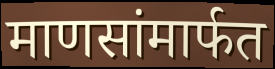
माणसांमार्फत